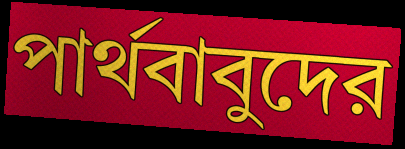
পার্থবাবুদের